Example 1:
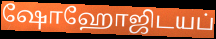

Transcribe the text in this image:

ஷோஹோஜிடயப்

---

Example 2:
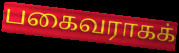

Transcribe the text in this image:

பகைவராகக்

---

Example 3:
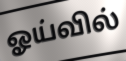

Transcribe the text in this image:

ஓய்வில்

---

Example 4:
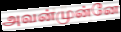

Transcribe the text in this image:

அவன்முன்னே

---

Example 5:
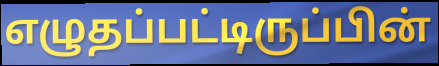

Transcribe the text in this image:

எழுதப்பட்டிருப்பின்